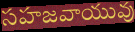
సహజవాయువు